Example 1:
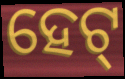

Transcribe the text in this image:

ହେଟ୍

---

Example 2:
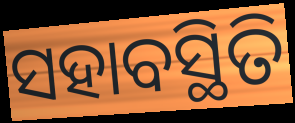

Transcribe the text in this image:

ସହାବସ୍ଥିତି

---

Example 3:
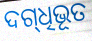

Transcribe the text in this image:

ଦଗ୍‌ଧିଭୂତ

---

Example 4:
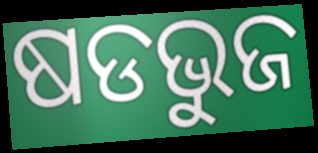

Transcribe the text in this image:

ଷଡଭୁଜ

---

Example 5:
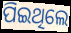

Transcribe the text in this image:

ପିଇଥିଲେ